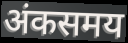
अंकसमय